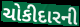
ચોકીદારની